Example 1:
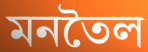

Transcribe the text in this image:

মনতৈল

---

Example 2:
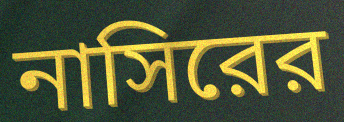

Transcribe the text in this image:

নাসিরের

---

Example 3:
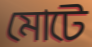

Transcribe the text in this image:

মোটে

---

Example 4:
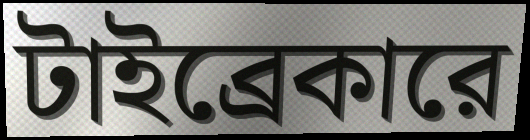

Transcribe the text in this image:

টাইব্রেকারে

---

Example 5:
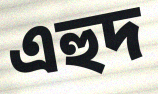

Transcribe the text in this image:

এহুদ